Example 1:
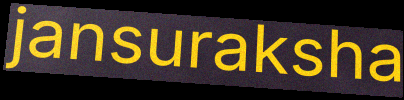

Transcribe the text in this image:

jansuraksha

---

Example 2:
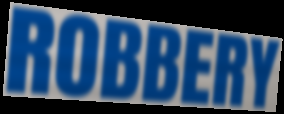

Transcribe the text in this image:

ROBBERY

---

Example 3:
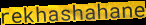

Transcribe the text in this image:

rekhashahane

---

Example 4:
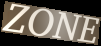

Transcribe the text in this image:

ZONE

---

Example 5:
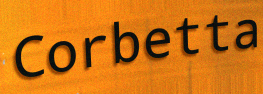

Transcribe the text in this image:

Corbetta